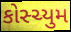
કોસ્ચ્યુમ